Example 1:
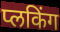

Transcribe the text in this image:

प्लकिंग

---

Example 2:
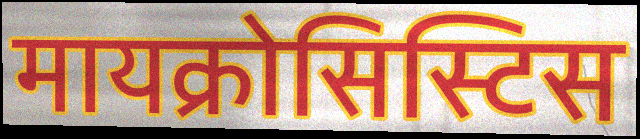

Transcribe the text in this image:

मायक्रोसिस्टिस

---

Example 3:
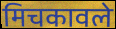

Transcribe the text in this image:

मिचकावले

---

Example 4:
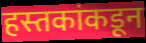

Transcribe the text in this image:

हस्तकांकडून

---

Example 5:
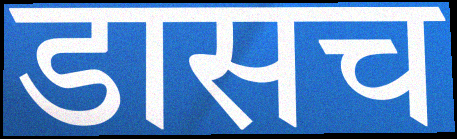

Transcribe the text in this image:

डासच